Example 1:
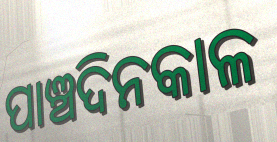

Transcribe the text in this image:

ପାଞ୍ଚଦିନକାଳ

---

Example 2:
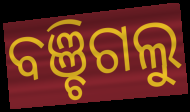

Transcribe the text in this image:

ବଞ୍ଚିଗଲୁ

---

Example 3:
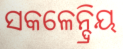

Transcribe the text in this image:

ସକଳେନ୍ଦ୍ରିୟ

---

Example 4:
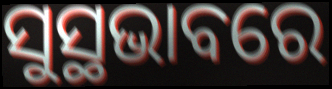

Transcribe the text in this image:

ସୁସ୍ଥଭାବରେ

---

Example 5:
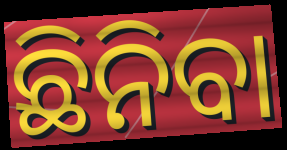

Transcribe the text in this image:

ଛିନିବା